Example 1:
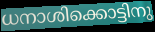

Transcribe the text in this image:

ധനാശിക്കൊട്ടിനു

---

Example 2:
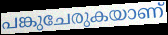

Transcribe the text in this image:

പങ്കുചേരുകയാണ്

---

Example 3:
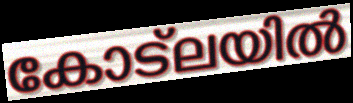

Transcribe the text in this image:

കോട്ലയിൽ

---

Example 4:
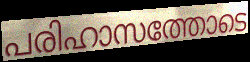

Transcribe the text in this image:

പരിഹാസത്തോടെ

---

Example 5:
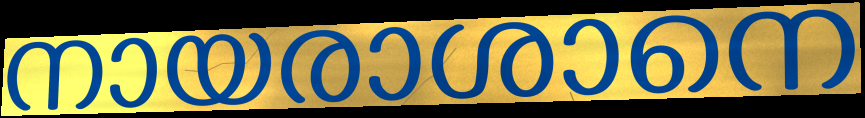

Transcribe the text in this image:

നായരാശാനെ